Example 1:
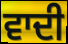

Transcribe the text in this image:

ਵਾਦੀ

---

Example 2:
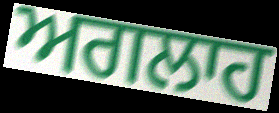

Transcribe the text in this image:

ਅਗਲਾਹ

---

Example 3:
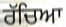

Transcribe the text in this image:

ਰੱਚਿਆ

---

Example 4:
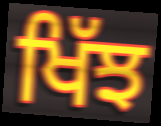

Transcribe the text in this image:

ਖਿੱਝ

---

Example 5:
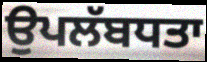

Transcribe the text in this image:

ਉਪਲੱਬਧਤਾ